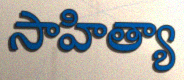
సాహిత్యా